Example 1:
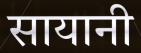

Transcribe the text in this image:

सायानी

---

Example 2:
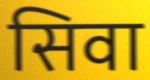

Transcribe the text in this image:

सिवा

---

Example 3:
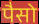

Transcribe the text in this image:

पैसो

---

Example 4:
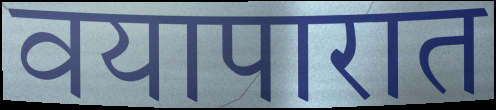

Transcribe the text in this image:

वयापारात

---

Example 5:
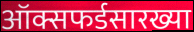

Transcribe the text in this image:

ऑक्सफर्डसारख्या